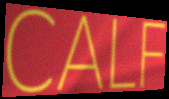
CALF